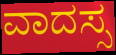
ವಾದಸ್ಸ